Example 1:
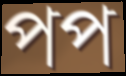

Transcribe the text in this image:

পপ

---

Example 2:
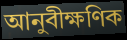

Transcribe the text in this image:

আনুবীক্ষণিক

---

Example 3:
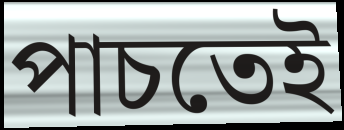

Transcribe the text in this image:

পাচতেই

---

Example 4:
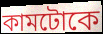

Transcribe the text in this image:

কামটোকে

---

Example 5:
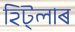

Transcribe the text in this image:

হিট্‌লাৰ